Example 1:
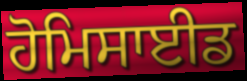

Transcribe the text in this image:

ਹੋਮਿਸਾਈਡ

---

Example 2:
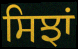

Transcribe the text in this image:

ਸਿਝਾਂ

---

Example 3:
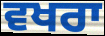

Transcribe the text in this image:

ਵਖਰਾ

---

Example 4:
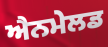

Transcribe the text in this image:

ਐਨਮੇਲਡ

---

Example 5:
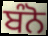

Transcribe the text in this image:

ਬੰਨੋ